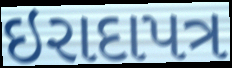
ઇરાદાપત્ર